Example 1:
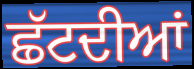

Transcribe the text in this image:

ਛੱਟਦੀਆਂ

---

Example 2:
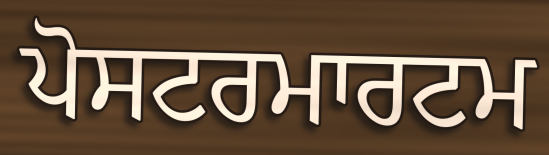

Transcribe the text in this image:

ਪੋਸਟਰਮਾਰਟਮ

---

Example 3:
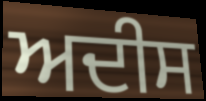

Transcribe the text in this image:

ਅਦੀਸ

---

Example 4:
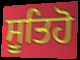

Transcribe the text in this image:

ਸੂਤਿਹੋ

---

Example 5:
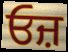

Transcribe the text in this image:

ਓਜ਼